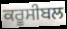
ਕਰੂਸੀਬਲ